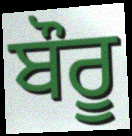
ਬੌਰੂ